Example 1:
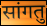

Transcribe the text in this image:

सांगतु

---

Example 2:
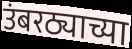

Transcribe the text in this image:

उंबरठ्याच्या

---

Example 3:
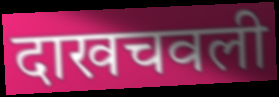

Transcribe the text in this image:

दाखचवली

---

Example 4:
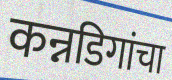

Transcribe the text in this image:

कन्नडिगांचा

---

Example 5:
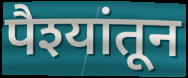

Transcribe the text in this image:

पैश्यांतून